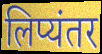
लिप्यंतर